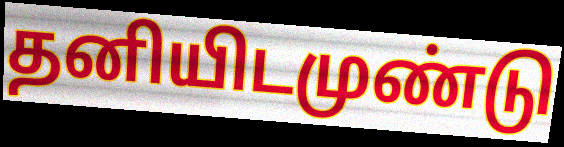
தனியிடமுண்டு